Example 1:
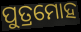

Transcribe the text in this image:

ପୁତ୍ରମୋହ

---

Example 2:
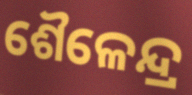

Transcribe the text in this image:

ଶୈଳେନ୍ଦ୍ର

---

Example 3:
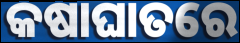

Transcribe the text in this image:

କଷାଘାତରେ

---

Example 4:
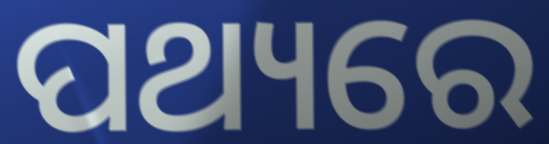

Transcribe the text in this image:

ପଥ୍ୟରେ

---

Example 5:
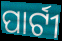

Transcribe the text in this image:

ପାର୍ଟୀ